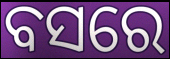
ବସରେ